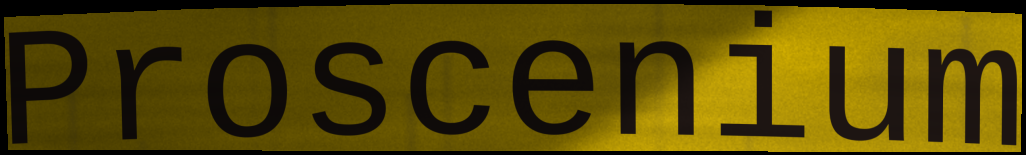
Proscenium